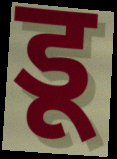
डू